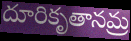
దూరికృతానమ్ర